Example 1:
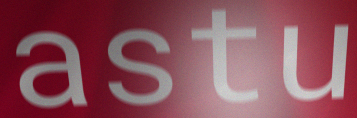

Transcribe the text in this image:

astu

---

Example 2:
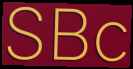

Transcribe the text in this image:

SBc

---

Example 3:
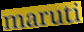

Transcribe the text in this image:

maruti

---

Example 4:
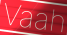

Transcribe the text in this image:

Vaah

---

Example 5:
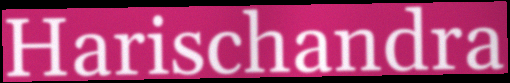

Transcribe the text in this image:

Harischandra